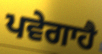
ਪਵੇਗਾਹੈ